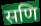
सणि